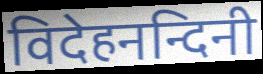
विदेहनन्दिनी